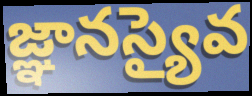
జ్ఞానస్యైవ